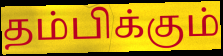
தம்பிக்கும்